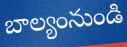
బాల్యంనుండి